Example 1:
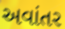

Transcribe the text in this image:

અવાંતર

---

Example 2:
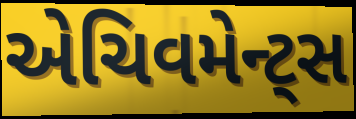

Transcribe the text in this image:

એચિવમેન્ટ્સ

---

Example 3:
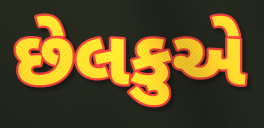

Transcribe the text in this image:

છેલકુએ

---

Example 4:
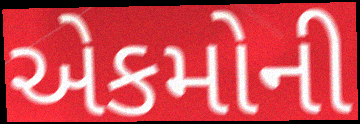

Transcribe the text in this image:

એકમોની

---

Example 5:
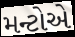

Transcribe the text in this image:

મન્ટોએ